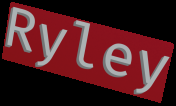
Ryley